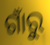
ଗାଁରୁ